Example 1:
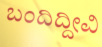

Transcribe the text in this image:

ಬಂದಿದ್ದೀವಿ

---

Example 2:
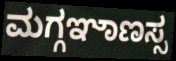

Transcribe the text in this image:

ಮಗ್ಗಞಾಣಸ್ಸ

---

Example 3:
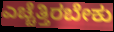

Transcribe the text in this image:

ಎಚ್ಚೆತ್ತಿರಬೇಕು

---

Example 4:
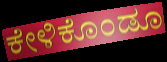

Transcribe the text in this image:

ಕೇಳಿಕೊಂಡೂ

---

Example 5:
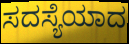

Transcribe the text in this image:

ಸದಸ್ಯೆಯಾದ